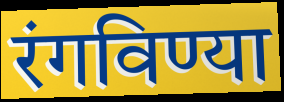
रंगविण्या